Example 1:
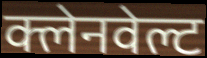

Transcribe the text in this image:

क्लेनवेल्ट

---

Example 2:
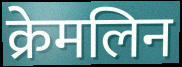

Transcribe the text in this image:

क्रेमलिन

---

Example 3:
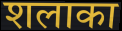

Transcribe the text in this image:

शलाका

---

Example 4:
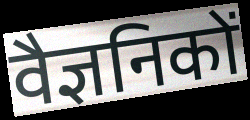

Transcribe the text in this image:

वैज्ञनिकों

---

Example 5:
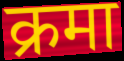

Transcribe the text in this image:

क्रमा